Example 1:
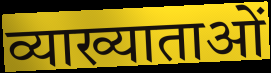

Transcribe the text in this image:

व्याख्याताओं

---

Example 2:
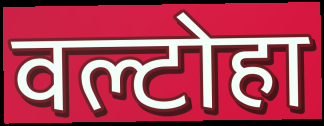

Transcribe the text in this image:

वल्टोहा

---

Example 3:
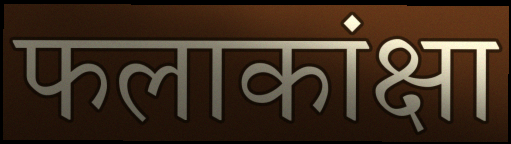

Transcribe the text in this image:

फलाकांक्षा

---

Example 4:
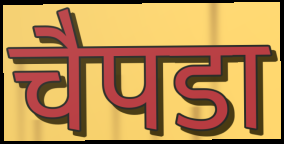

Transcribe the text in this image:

चैपडा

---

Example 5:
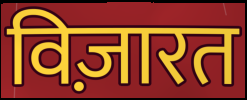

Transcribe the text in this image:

विज़ारत